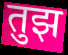
तुझ